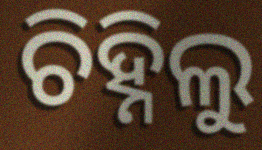
ଚିହ୍ନିଲୁ